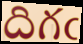
దిగఁ